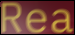
Rea